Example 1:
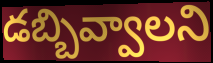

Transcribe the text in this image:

డబ్బివ్వాలని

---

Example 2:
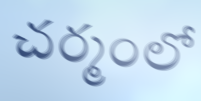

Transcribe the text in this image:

చర్మంలో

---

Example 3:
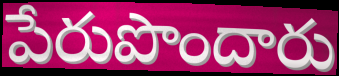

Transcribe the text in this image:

పేరుపొందారు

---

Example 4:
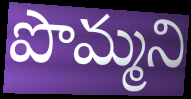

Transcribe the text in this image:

పొమ్మని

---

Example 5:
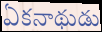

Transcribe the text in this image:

ఏకనాథుడు